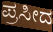
ಪ್ರಸೀದ